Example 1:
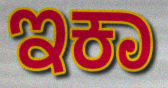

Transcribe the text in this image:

ಇಕಾ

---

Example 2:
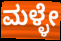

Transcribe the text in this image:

ಮಳ್ಳೇ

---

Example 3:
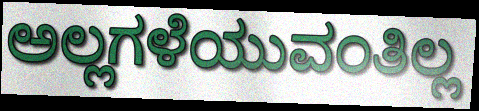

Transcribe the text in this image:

ಅಲ್ಲಗಳೆಯುವಂತಿಲ್ಲ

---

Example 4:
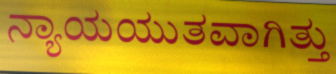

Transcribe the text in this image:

ನ್ಯಾಯಯುತವಾಗಿತ್ತು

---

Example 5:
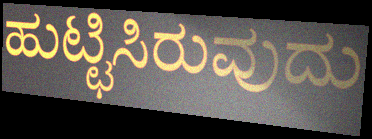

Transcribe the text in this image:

ಹುಟ್ಟಿಸಿರುವುದು